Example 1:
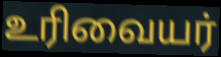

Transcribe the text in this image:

உரிவையர்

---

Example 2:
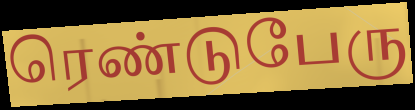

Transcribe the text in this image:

ரெண்டுபேரு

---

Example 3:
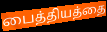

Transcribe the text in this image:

பைத்தியத்தை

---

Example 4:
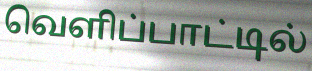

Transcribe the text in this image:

வெளிப்பாட்டில்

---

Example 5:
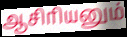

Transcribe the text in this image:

ஆசிரியனும்